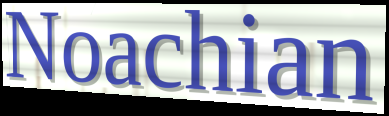
Noachian